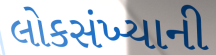
લોકસંખ્યાની